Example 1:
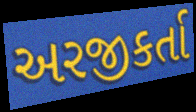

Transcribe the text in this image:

અરજીકર્તા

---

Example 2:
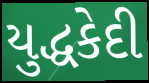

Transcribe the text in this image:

યુદ્ધકેદી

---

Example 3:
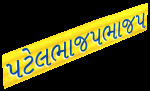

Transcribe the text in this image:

પટેલભાજપભાજપ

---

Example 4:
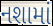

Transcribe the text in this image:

નશામાં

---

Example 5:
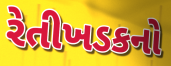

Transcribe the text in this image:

રેતીખડકનો